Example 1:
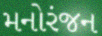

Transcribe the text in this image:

મનોરંજન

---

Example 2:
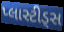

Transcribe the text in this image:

પ્લાસ્ટીડ્સ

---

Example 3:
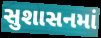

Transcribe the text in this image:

સુશાસનમાં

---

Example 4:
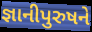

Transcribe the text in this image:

જ્ઞાનીપુરુષને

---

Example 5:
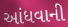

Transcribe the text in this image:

આંધવાની